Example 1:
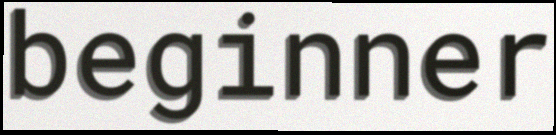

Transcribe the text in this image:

beginner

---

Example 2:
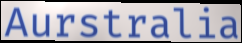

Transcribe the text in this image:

Aurstralia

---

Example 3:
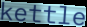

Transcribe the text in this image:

kettle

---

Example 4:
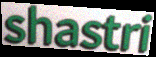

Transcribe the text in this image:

shastri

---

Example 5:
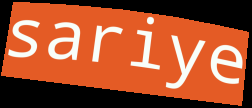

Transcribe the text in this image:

sariye